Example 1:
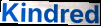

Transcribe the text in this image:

Kindred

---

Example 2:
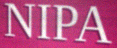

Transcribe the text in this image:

NIPA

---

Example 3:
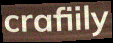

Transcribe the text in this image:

crafiily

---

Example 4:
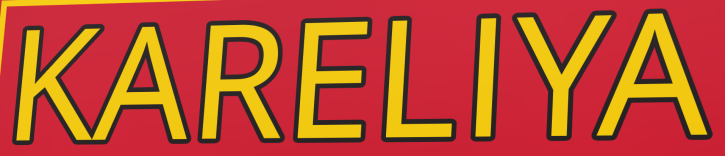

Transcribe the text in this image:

KARELIYA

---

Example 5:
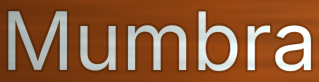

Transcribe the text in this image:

Mumbra